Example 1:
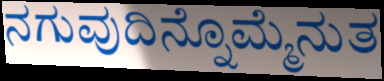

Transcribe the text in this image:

ನಗುವುದಿನ್ನೊಮ್ಮೆನುತ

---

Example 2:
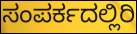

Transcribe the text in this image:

ಸಂಪರ್ಕದಲ್ಲಿರಿ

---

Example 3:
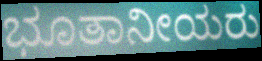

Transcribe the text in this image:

ಭೂತಾನೀಯರು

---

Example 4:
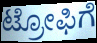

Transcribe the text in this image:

ಟ್ರೋಫಿಗೆ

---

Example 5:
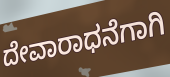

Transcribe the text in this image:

ದೇವಾರಾಧನೆಗಾಗಿ